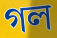
গল